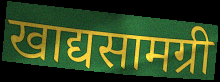
खाद्यसामग्री